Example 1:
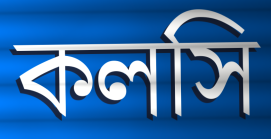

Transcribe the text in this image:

কলসি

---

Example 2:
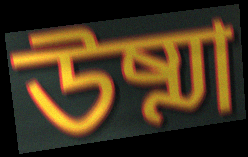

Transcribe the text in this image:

উষ্মা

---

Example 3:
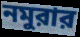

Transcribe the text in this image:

নমুরার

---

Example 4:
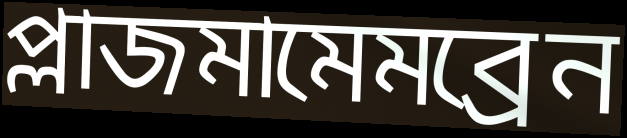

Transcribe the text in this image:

প্লাজমামেমব্রেন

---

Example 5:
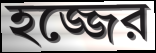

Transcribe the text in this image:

হজ্জের